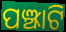
ପଞ୍ଝାଟି